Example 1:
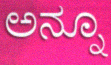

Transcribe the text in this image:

ಅನ್ನೂ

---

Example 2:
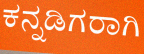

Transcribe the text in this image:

ಕನ್ನಡಿಗರಾಗಿ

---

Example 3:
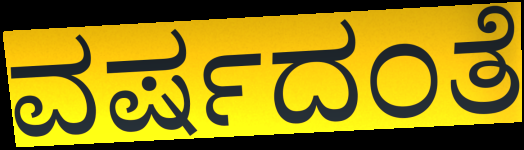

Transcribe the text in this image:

ವರ್ಷದಂತೆ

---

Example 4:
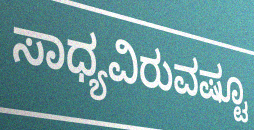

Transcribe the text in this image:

ಸಾಧ್ಯವಿರುವಷ್ಟೂ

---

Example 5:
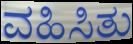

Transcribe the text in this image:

ವಹಿಸಿತು